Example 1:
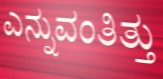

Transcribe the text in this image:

ಎನ್ನುವಂತಿತ್ತು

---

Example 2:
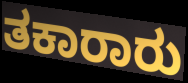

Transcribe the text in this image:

ತಕಾರಾರು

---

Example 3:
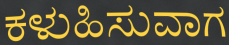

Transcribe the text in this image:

ಕಳುಹಿಸುವಾಗ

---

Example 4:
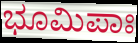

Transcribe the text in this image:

ಭೂಮಿಪಾಃ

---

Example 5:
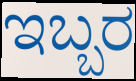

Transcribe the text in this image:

ಇಬ್ಬರ